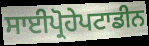
ਸਾਈਪ੍ਰੋਹੇਪਟਾਡੀਨ